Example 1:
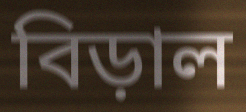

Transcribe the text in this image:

বিড়াল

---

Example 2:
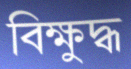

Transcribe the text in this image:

বিক্ষুদ্ধ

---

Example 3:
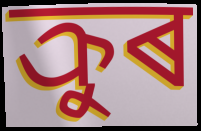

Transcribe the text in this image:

ক্ৰুৰ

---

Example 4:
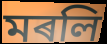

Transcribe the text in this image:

মৰলি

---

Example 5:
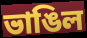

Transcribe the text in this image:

ভাঙিল